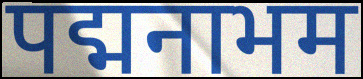
पद्मनाभम